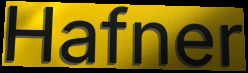
Hafner